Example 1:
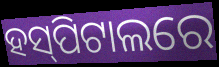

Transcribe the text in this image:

ହସ୍‌ପିଟାଲରେ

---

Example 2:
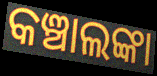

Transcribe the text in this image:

କଞ୍ଚାଲଙ୍କା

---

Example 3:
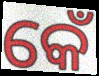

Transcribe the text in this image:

କେଁ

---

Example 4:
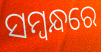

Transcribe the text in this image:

ସମ୍ବନ୍ଧରେ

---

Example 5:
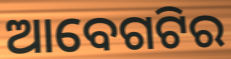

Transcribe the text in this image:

ଆବେଗଟିର